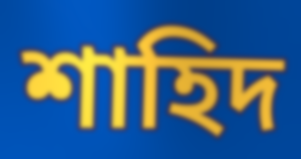
শাহিদ